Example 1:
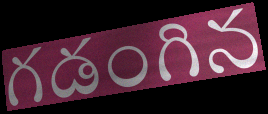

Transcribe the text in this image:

గడంగిన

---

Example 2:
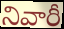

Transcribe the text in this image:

నివారీ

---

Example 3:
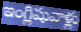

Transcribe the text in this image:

ఇంగ్లిషువాళ్లు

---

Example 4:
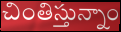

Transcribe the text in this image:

చింతిస్తున్నాం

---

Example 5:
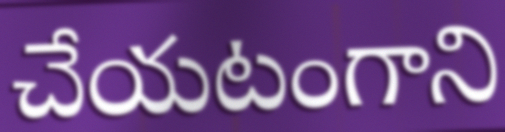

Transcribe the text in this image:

చేయటంగాని